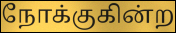
நோக்குகின்ற